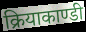
क्रियाकाण्डी